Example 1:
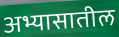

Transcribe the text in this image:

अभ्यासातील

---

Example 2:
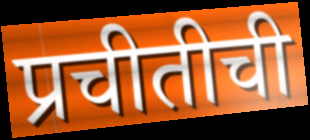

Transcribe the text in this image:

प्रचीतीची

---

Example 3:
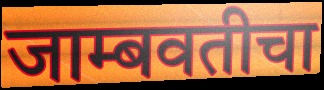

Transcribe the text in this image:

जाम्बवतीचा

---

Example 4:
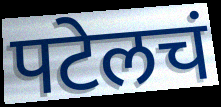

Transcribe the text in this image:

पटेलचं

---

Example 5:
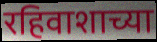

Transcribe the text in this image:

रहिवाशाच्या